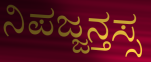
ನಿಪಜ್ಜನ್ತಸ್ಸ